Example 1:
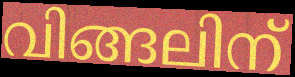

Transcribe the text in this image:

വിങ്ങലിന്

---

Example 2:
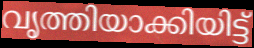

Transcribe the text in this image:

വൃത്തിയാക്കിയിട്ട്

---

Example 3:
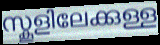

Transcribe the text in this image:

സ്കൂളിലേക്കുള്ള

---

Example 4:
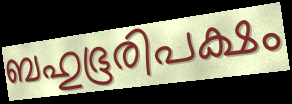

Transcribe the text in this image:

ബഹുഭൂരിപക്ഷം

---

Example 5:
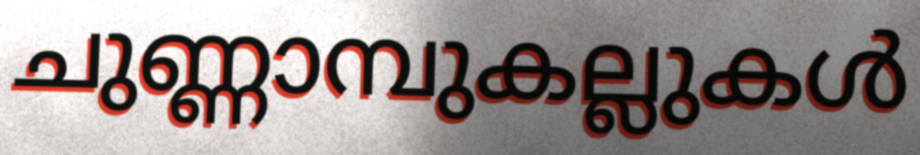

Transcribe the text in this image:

ചുണ്ണാമ്പുകല്ലുകൾ